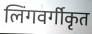
लिंगवर्गीकृत